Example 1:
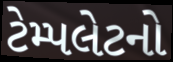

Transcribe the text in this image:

ટેમ્પલેટનો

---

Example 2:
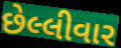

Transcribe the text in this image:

છેલ્લીવાર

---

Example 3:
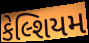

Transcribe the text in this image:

કેલ્શિયમ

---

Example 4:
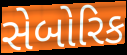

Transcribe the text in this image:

સેબોરિક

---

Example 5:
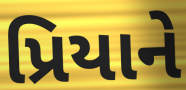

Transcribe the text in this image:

પ્રિયાને